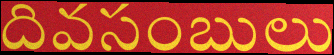
దివసంబులు